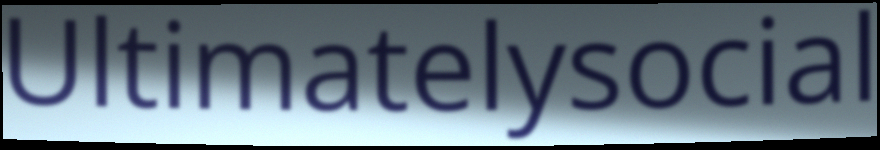
Ultimatelysocial